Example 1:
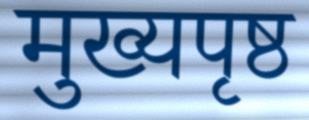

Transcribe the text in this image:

मुख्यपृष्ठ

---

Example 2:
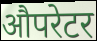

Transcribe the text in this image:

औपरेटर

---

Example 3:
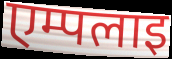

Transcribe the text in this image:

एम्पलाइ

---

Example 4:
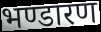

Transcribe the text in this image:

भण्डारण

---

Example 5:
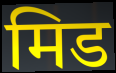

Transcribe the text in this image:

मिड